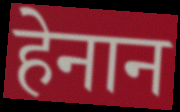
हेनान